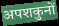
अपशकुनों